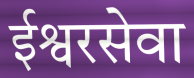
ईश्वरसेवा